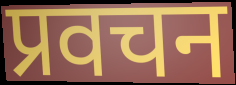
प्रवचन